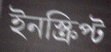
ইনস্ক্রিপ্ট